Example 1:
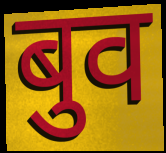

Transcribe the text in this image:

बुव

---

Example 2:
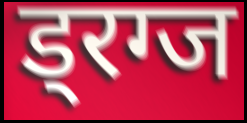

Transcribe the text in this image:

ड्रग्ज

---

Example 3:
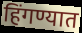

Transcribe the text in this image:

हिंगण्यात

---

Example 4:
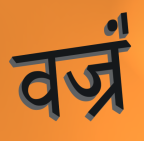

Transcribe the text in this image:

वज्रं॑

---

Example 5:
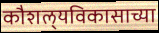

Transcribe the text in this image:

कौशल्यविकासाच्या